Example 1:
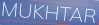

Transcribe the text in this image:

MUKHTAR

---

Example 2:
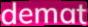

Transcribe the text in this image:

demat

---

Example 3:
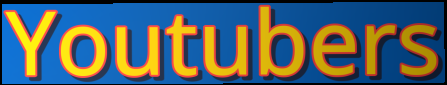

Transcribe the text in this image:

Youtubers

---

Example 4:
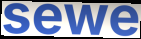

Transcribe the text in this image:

sewe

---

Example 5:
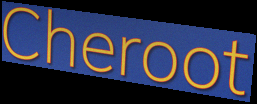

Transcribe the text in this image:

Cheroot